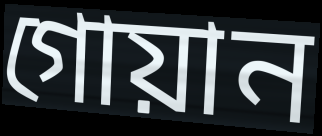
গোয়ান